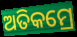
ଅତିକମ୍ରେ